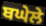
ਬਘੇਲੇ